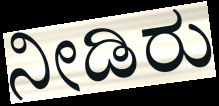
ನೀಡಿರು